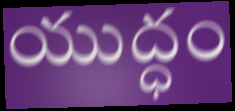
యుద్ధం